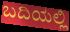
ಬದಿಯಲ್ಲಿ